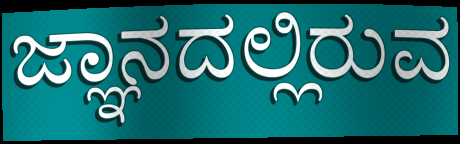
ಜ್ಞಾನದಲ್ಲಿರುವ